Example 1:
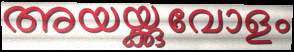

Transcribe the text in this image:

അയയ്ക്കുവോളം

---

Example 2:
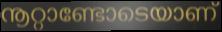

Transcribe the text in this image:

നൂറ്റാണ്ടോടെയാണ്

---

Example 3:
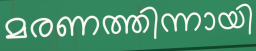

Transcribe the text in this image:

മരണത്തിന്നായി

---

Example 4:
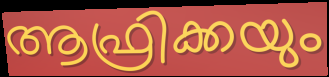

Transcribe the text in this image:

ആഫ്രിക്കയും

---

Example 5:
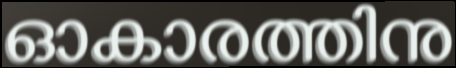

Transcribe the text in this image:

ഓകാരത്തിനു